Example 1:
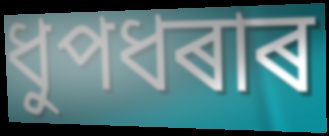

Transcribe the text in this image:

ধুপধৰাৰ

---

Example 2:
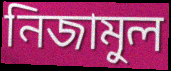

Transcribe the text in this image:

নিজামুল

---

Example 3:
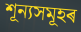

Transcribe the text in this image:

শূন্যসমূহৰ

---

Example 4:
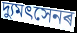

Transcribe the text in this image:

দ্যুমৎসেনৰ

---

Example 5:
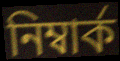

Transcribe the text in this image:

নিম্বাৰ্ক